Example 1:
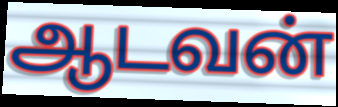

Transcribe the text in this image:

ஆடவன்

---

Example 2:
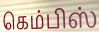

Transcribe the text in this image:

கெம்பிஸ்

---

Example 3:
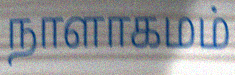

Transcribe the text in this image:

நாளாகமம்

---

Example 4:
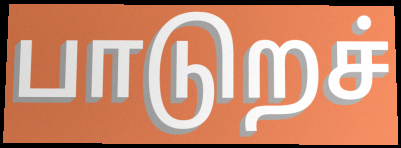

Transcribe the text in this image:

பாடுறச்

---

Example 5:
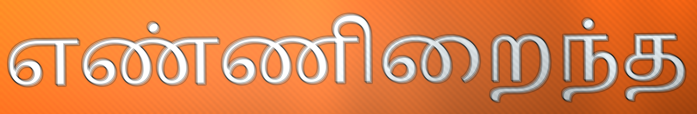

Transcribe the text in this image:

எண்ணிறைந்த